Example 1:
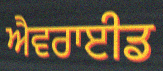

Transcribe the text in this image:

ਐਵਰਾਈਡ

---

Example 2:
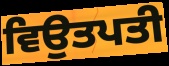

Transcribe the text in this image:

ਵਿਉਤਪਤੀ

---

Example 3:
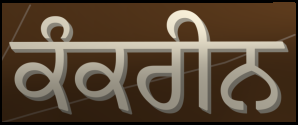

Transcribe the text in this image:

ਕੰਕਰੀਨ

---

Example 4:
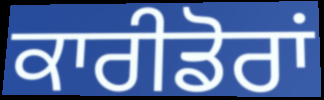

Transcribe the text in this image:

ਕਾਰੀਡੋਰਾਂ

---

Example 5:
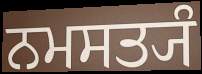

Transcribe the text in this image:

ਨਮਸਤ੍ਯੰ